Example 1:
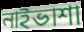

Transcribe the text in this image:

নাইভাশা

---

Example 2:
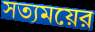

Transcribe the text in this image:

সত্যময়ের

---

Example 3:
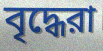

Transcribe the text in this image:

বৃদ্ধেরা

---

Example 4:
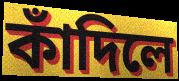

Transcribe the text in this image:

কাঁদিলে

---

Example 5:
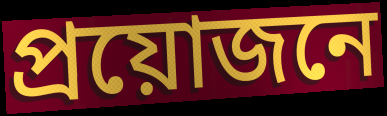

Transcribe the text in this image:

প্রয়োজনে